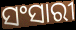
ସଂସାରୀ